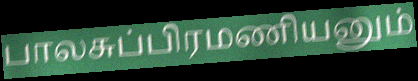
பாலசுப்பிரமணியனும்